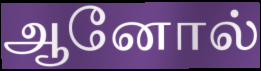
ஆனோல்